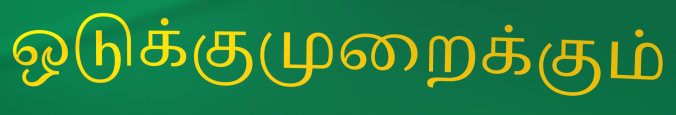
ஒடுக்குமுறைக்கும்